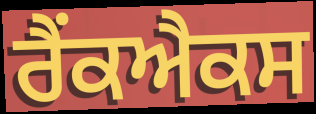
ਰੈਂਕਐਕਸ